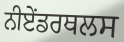
ਨੀਏਂਡਰਥਲਸ